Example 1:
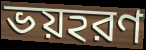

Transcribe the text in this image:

ভয়হরণ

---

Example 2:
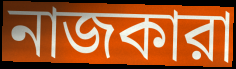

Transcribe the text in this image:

নাজকারা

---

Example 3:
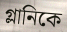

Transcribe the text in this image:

গ্লানিকে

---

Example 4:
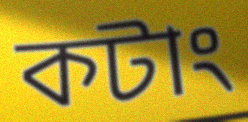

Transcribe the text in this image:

কটাং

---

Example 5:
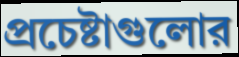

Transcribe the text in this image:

প্রচেষ্টাগুলোর